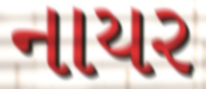
નાયર